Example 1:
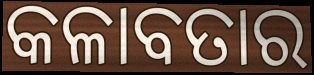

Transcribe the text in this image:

କଳାବତାର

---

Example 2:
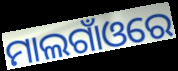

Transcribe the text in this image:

ମାଲଗାଁଓରେ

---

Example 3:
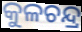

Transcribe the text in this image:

କୁଳଚନ୍ଦ୍ର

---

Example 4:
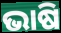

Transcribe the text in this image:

ଭାଷି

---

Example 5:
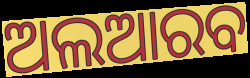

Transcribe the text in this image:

ଅଲଆରବ